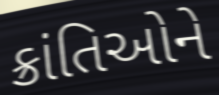
ક્રાંતિઓને